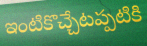
ఇంటికొచ్చేటప్పటికి